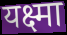
यक्ष्मा